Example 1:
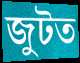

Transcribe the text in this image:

জুটত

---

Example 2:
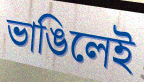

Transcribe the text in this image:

ভাঙিলেই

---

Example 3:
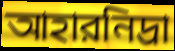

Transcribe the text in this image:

আহারনিদ্রা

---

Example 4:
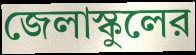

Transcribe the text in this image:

জেলাস্কুলের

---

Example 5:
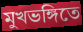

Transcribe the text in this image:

মুখভঙ্গিতে